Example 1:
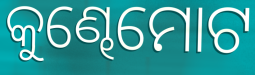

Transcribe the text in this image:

କୁଣ୍ଢେମୋଟ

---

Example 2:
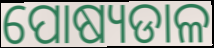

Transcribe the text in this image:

ପୋଷ୍ୟଡାଳ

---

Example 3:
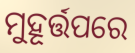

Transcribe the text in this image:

ମୁହୂର୍ତ୍ତପରେ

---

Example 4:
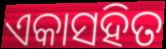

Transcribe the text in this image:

ଏକାସହିତ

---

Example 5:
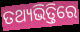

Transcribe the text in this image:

ତଥ୍ୟଭିତ୍ତିରେ